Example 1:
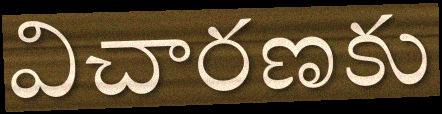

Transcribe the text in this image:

విచారణకు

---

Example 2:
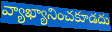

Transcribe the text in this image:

వ్యాఖ్యానించకూడదు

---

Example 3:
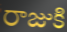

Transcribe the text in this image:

రాజుకి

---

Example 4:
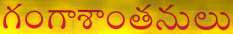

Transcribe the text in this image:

గంగాశాంతనులు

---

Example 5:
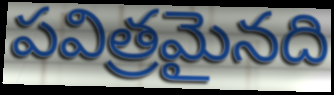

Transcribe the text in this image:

పవిత్రమైనది